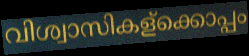
വിശ്വാസികള്ക്കൊപ്പം